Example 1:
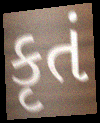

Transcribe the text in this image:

કૃતં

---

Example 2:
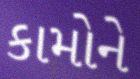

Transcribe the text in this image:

કામોને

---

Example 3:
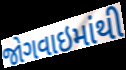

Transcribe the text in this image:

જોગવાઇમાંથી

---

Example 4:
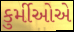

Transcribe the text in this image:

કુર્મીઓએ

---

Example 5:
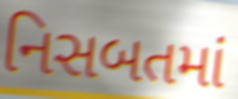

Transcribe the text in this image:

નિસબતમાં